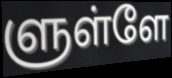
ளுள்ளே